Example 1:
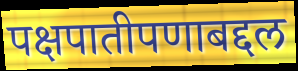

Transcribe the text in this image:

पक्षपातीपणाबद्दल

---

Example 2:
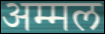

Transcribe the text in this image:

अम्मल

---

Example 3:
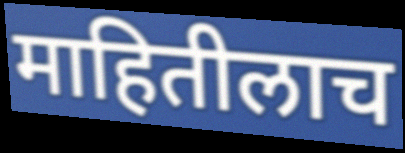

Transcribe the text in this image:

माहितीलाच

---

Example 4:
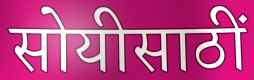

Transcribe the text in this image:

सोयीसाठीं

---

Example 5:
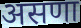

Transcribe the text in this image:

असणा